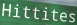
Hittites